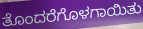
ತೊಂದರೆಗೊಳಗಾಯಿತು